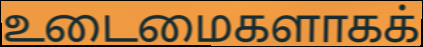
உடைமைகளாகக்